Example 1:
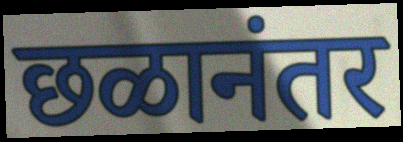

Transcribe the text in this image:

छळानंतर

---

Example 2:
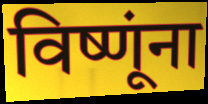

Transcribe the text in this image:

विष्णूंना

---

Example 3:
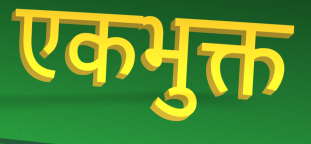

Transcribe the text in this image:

एकभुक्त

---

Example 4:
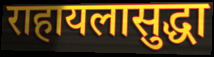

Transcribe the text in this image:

राहायलासुद्धा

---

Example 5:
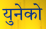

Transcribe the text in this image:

युनेको